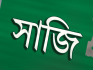
সাজি